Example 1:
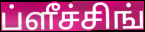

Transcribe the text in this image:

ப்ளீச்சிங்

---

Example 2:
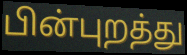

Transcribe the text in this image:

பின்புறத்து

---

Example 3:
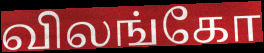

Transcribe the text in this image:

விலங்கோ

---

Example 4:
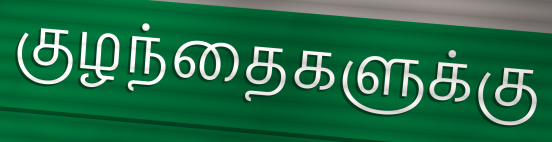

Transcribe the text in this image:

குழந்தைகளுக்கு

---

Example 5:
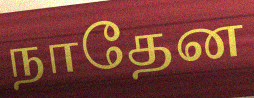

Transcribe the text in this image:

நாதேன